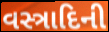
વસ્ત્રાદિની